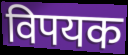
विपयक